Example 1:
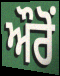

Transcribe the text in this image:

ਔਰੋਂ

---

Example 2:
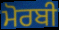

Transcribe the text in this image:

ਮੋਰਬੀ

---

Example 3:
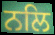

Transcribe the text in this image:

ਨਲਿ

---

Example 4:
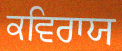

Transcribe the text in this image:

ਕਵਿਰਾਯ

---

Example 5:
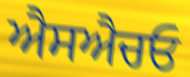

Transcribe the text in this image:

ਐਸਐਚਓ